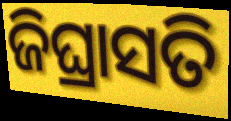
ଜିଘ୍ରାସତି